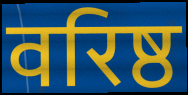
वरिष्ठ